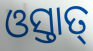
ଓସ୍ତାତ୍